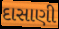
દાસાણી